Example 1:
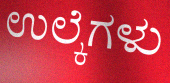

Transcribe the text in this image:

ಉಲ್ಕೆಗಳು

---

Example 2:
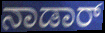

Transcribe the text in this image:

ನಾಡಾರ್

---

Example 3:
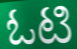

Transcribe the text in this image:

ಓಟಿ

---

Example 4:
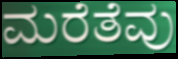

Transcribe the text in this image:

ಮರೆತೆವು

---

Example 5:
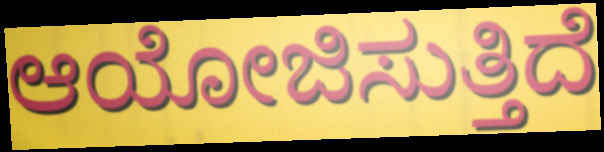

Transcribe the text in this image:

ಆಯೋಜಿಸುತ್ತಿದೆ